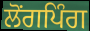
ਲੋਂਗਪਿੰਗ